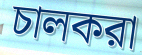
চালকরা